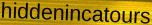
hiddenincatours